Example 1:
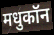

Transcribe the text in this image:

मधुकॉन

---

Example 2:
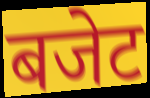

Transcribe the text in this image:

बजेट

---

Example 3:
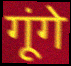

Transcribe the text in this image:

गूंगे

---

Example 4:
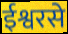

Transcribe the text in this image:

ईश्वरसे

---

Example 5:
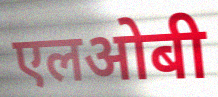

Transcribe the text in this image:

एलओबी